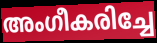
അംഗീകരിച്ചേ